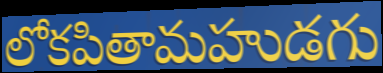
లోకపితామహుడగు